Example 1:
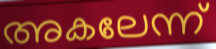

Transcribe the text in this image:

അകലേന്ന്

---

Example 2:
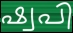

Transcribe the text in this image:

ഷ്വപി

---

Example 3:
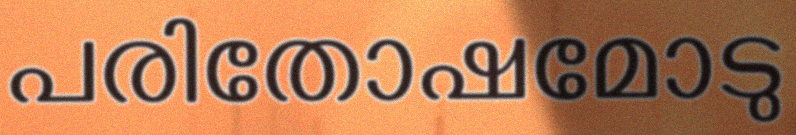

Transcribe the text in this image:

പരിതോഷമോടു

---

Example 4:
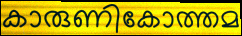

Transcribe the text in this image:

കാരുണികോത്തമ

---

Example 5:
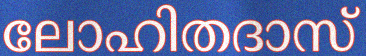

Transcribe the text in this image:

ലോഹിതദാസ്